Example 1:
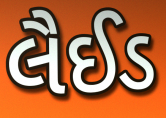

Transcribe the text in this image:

લૈઈડ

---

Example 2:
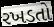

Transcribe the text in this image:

રખડતો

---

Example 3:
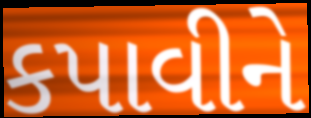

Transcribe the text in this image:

કપાવીને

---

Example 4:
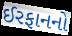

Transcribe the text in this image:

ઈરફાનનો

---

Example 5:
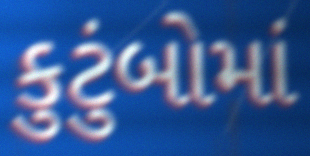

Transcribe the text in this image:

કુટુંબોમાં